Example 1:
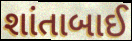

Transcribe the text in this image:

શાંતાબાઈ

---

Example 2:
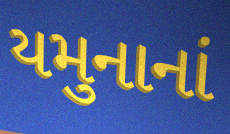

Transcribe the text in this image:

યમુનાનાં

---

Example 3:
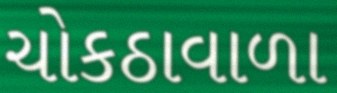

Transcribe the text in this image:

ચોકઠાવાળા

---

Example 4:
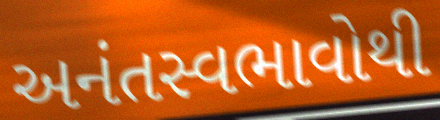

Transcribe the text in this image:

અનંતસ્વભાવોથી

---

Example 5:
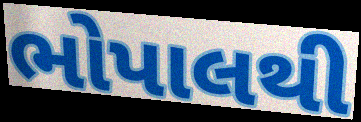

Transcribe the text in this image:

ભોપાલથી